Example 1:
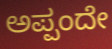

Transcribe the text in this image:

ಅಪ್ಪಂದೇ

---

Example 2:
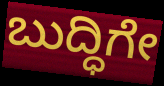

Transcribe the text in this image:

ಬುದ್ಧಿಗೇ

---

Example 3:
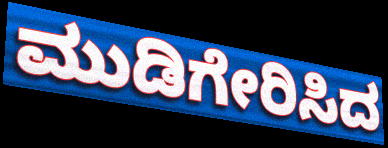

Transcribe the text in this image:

ಮುಡಿಗೇರಿಸಿದ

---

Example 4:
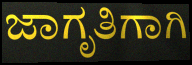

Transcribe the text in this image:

ಜಾಗೃತಿಗಾಗಿ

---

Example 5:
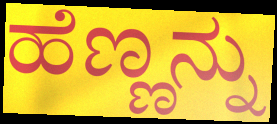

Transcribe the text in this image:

ಹೆಣ್ಣನ್ನು